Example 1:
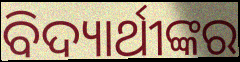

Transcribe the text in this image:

ବିଦ୍ୟାର୍ଥୀଙ୍କର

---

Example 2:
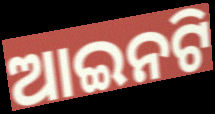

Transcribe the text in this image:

ଆଇନଟି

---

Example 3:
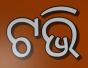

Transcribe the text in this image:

ଟଭି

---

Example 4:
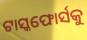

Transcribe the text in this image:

ଟାସ୍କଫୋର୍ସକୁ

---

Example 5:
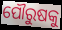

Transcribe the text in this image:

ପୌରୁଷକୁ